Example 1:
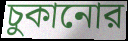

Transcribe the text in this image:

চুকানোর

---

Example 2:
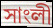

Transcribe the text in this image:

সাংলী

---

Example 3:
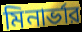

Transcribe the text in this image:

মিনার্ভার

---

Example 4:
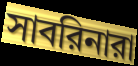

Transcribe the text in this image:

সাবরিনারা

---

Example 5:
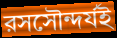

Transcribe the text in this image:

রসসৌন্দর্যই